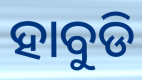
ହାବୁଡି